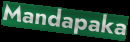
Mandapaka